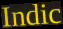
Indic